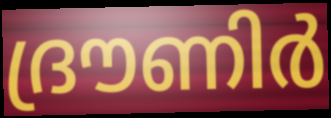
ദ്രൗണിർ